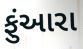
ફુંઆરા